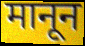
मानून